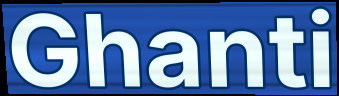
Ghanti